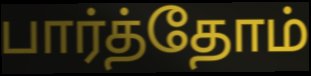
பார்த்தோம்